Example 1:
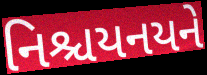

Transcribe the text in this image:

નિશ્ચયનયને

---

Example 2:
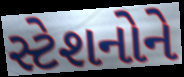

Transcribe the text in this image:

સ્ટેશનોને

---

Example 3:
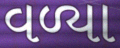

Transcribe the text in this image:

વળ્યા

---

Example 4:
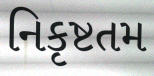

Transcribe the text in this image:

નિકૃષ્ટતમ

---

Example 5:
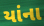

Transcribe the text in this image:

યાંના